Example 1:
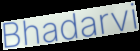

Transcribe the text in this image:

Bhadarvi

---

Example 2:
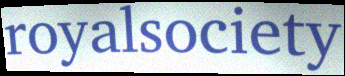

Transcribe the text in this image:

royalsociety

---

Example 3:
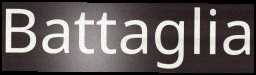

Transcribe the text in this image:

Battaglia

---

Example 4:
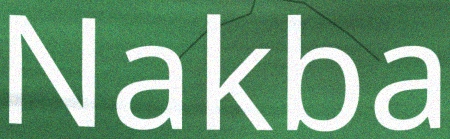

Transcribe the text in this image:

Nakba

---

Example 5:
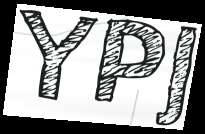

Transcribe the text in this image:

YPJ